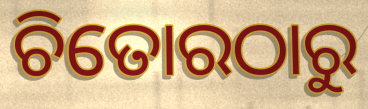
ଚିତୋରଠାରୁ